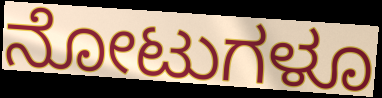
ನೋಟುಗಳೂ